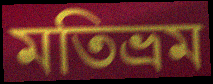
মতিভ্রম